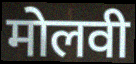
मोलवी